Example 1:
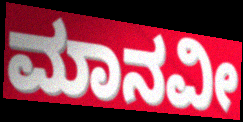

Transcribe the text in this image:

ಮಾನವೀ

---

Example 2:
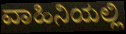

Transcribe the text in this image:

ವಾಹಿನಿಯಲ್ಲಿ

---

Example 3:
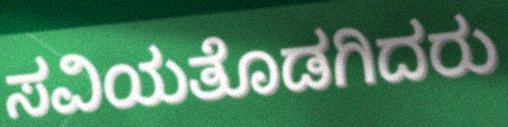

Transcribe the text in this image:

ಸವಿಯತೊಡಗಿದರು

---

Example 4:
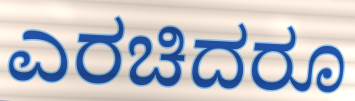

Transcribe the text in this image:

ಎರಚಿದರೂ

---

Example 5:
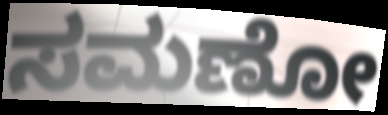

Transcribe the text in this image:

ಸಮಣೋ